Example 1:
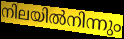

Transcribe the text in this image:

നിലയിൽനിന്നും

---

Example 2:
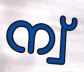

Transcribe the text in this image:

ന്വ്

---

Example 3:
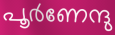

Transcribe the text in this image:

പൂർണേന്ദു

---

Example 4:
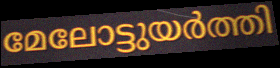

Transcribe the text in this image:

മേലോട്ടുയർത്തി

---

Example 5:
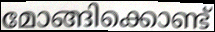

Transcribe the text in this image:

മോങ്ങിക്കൊണ്ട്